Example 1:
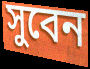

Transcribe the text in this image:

সুবেন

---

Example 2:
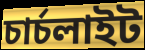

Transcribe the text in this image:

চাৰ্চলাইট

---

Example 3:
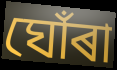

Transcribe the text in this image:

ঘোঁৰা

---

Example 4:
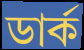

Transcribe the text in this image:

ডাৰ্ক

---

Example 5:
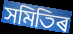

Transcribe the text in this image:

সমিতিৰ